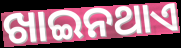
ଖାଇନଥାଏ